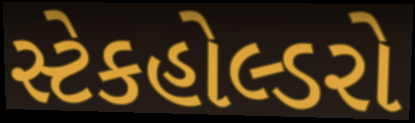
સ્ટેકહોલ્ડરો